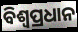
ବିଶ୍ୱପ୍ରଧାନ